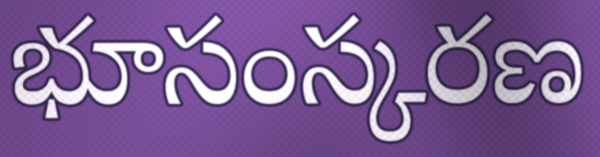
భూసంస్కరణ